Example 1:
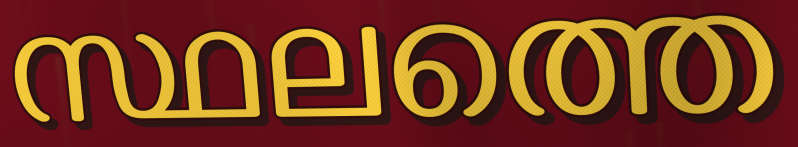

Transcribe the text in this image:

സ്ഥലത്തെ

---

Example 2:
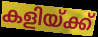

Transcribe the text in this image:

കളിയ്ക്ക്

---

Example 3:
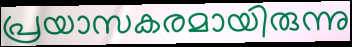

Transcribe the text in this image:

പ്രയാസകരമായിരുന്നു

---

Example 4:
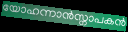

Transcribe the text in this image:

യോഹന്നാൻസ്നാപകൻ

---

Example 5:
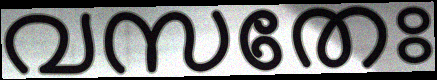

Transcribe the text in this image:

വസതേഃ